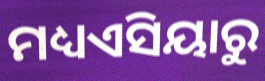
ମଧ୍ୟଏସିୟାରୁ